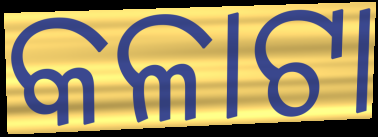
କଳାଟା